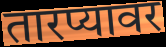
तारप्यावर